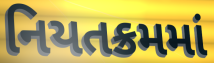
નિયતક્રમમાં